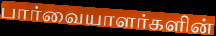
பார்வையாளர்களின்